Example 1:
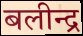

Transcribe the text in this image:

बलीन्द्र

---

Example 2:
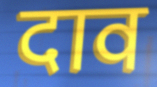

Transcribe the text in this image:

दाव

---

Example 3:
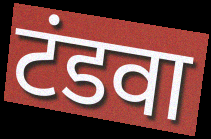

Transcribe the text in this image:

टंडवा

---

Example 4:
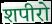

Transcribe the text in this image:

शपीरो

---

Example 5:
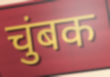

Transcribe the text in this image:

चुंबक